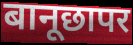
बानूछापर